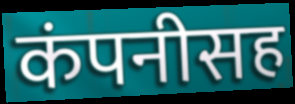
कंपनीसह